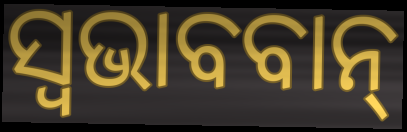
ସ୍ଵଭାବବାନ୍